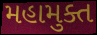
મહામુક્ત